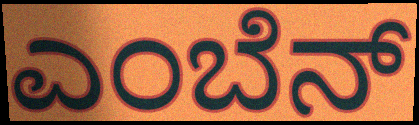
ಎಂಬೆನ್